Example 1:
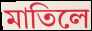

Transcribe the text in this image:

মাতিলে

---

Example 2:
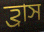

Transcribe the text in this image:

হ্ৰাস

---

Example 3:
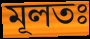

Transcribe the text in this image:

মূলতঃ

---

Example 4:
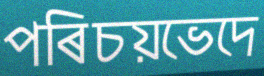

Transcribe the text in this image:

পৰিচয়ভেদে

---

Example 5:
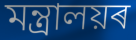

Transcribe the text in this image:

মন্ত্ৰালয়ৰ